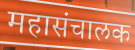
महासंचालक